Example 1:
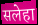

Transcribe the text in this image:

सलेहा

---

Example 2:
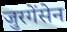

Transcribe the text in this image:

जुरगेंसेन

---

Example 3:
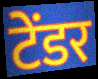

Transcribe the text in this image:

टेंडर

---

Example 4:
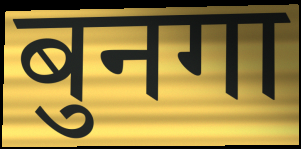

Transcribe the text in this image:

बुनगा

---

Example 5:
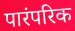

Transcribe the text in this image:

पारंपरिक